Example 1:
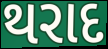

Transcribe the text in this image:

થરાદ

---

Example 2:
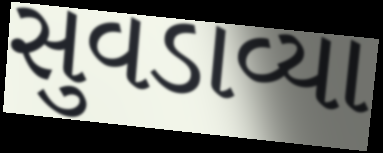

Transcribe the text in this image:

સુવડાવ્યા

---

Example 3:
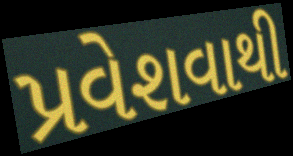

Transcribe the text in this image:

પ્રવેશવાથી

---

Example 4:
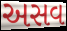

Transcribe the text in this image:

અસવ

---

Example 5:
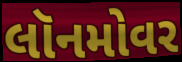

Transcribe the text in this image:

લૉનમોવર